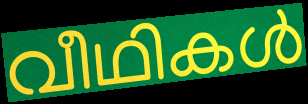
വീഥികൾ